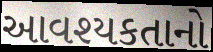
આવશ્યકતાનો